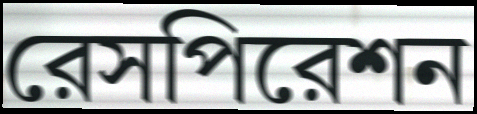
রেসপিরেশন